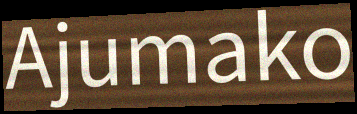
Ajumako